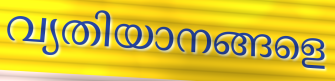
വ്യതിയാനങ്ങളെ